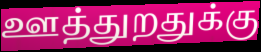
ஊத்துறதுக்கு